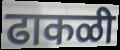
ढाकळी